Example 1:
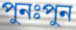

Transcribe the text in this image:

পুনঃপুন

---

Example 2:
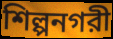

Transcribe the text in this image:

শিল্পনগরী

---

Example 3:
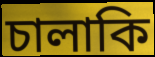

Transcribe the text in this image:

চালাকি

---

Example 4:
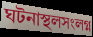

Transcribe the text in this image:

ঘটনাস্থলসংলগ্ন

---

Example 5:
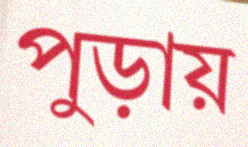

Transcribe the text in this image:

পুড়ায়